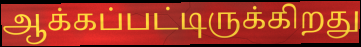
ஆக்கப்பட்டிருக்கிறது